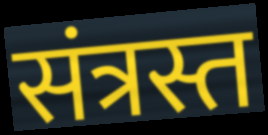
संत्रस्त